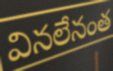
వినలేనంత